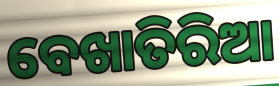
ବେଖାତିରିଆ